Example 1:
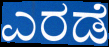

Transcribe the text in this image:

ಎರಡೆ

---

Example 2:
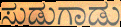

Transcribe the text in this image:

ಸುಡುಗಾಡು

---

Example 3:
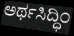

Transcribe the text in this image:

ಅರ್ಥಸಿದ್ಧಿಂ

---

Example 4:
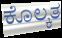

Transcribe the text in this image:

ಕೊಲ್ಕತ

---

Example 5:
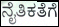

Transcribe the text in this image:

ನೈತಿಕತೆಗೆ